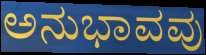
ಅನುಭಾವವು